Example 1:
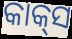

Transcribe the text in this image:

କାକ୍‌ସ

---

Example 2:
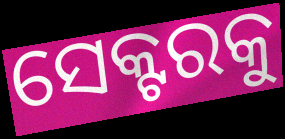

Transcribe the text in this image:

ସେକ୍ଟରକୁ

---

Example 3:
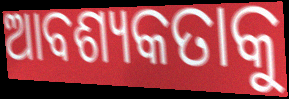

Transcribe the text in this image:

ଆବଶ୍ୟକତାକୁ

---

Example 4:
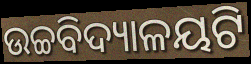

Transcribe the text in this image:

ଉଚ୍ଚବିଦ୍ୟାଳୟଟି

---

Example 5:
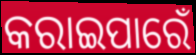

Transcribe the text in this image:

କରାଇପାରେଁ